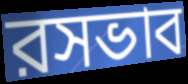
রসভাব